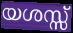
യശസ്സ്